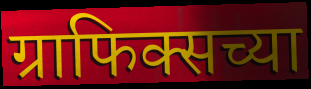
ग्राफिक्सच्या